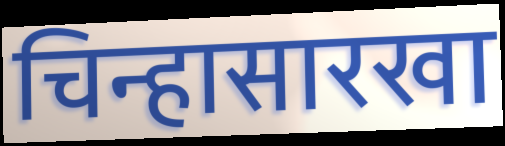
चिन्हासारखा